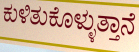
ಕುಳಿತುಕೊಳ್ಳುತ್ತಾನೆ